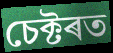
চেক্টৰত